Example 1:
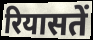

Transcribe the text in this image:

रियासतें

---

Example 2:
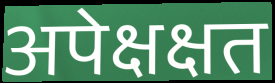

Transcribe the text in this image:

अपेक्षक्षत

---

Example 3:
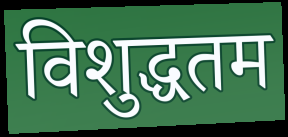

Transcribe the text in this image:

विशुद्धतम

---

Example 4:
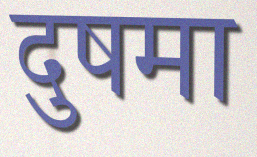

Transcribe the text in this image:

दुषमा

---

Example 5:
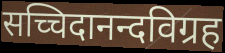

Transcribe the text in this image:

सच्चिदानन्दविग्रह